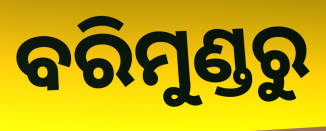
ବରିମୁଣ୍ଡରୁ